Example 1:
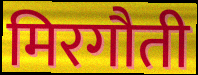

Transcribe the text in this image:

मिरगौती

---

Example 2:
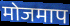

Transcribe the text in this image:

मोजमाप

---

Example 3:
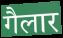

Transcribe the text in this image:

गैलार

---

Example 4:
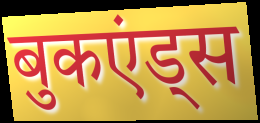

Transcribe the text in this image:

बुकएंड्स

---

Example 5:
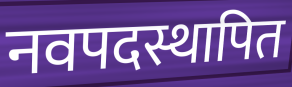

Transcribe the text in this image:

नवपदस्थापित